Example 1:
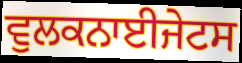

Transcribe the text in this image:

ਵੁਲਕਨਾਈਜੇਟਸ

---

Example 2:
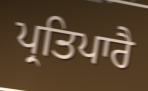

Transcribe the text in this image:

ਪ੍ਰਤਿਪਾਰੈ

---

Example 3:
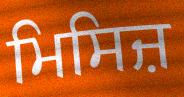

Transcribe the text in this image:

ਮਿਸਿਜ਼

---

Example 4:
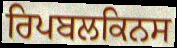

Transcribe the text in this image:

ਰਿਪਬਲਕਿਨਸ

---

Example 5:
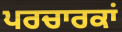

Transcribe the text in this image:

ਪਰਚਾਰਕਾਂ